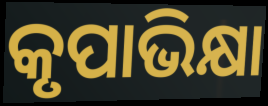
କୃପାଭିକ୍ଷା